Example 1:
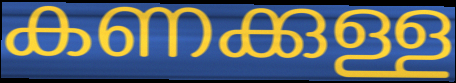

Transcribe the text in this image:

കണക്കുള്ള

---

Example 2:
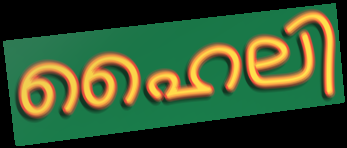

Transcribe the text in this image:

ഹൈലി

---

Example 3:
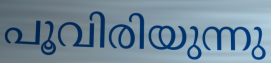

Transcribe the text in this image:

പൂവിരിയുന്നു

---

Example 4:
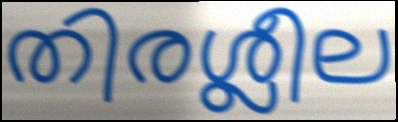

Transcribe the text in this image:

തിരശ്ലീല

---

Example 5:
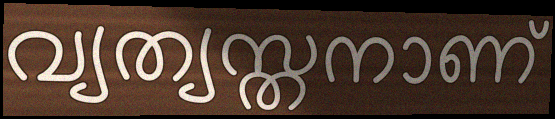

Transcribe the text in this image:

വ്യത്യസ്തനാണ്